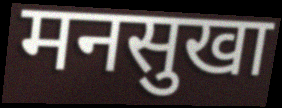
मनसुखा